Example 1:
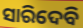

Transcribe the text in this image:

ସାରିଦେବି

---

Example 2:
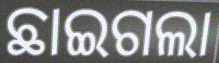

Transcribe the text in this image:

ଛାଇଗଲା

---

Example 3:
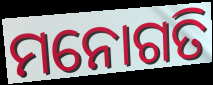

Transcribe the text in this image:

ମନୋଗତି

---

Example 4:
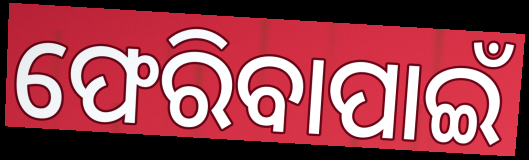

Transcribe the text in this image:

ଫେରିବାପାଇଁ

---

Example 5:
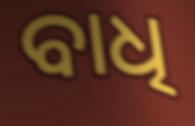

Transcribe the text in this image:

ବାଧି